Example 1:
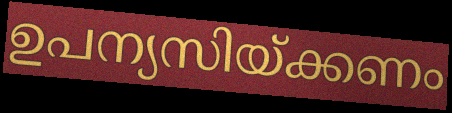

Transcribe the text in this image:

ഉപന്യസിയ്ക്കണം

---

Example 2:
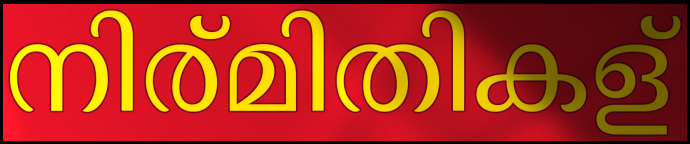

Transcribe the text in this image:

നിര്മിതികള്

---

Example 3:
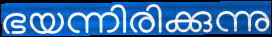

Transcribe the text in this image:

ഭയന്നിരിക്കുന്നു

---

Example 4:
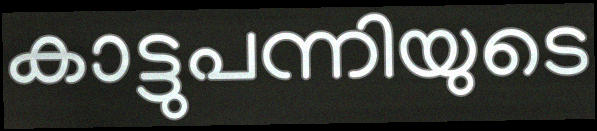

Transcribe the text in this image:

കാട്ടുപന്നിയുടെ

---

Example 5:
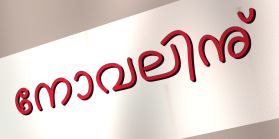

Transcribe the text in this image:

നോവലിനു്